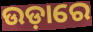
ଉଡ଼ାରେ